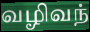
வழிவந்